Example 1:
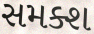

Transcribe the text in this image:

સમક્શ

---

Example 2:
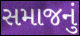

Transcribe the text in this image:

સમાજનું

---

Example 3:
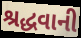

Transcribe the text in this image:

શ્રદ્ધવાની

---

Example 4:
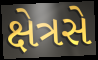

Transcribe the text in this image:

ક્ષેત્રસે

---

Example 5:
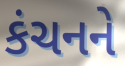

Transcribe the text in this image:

કંચનને